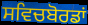
ਸਵਿਚਬੋਰਡਾਂ